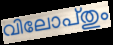
വിലോപ്തും